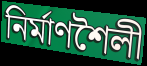
নির্মাণশৈলী